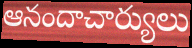
ఆనందాచార్యులు